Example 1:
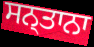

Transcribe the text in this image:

ਸਨ੍ਤਾਨਾ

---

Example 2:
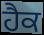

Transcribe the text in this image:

ਹੈਕ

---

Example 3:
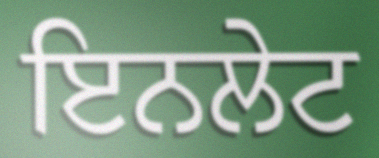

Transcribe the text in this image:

ਇਨਲੇਟ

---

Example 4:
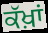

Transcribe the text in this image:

ਕੱਖ਼ਾਂ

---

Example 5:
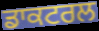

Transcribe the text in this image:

ਡਾਕਟਰਲ